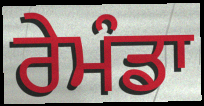
ਰੇਮੰਡਾ